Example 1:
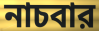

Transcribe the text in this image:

নাচবার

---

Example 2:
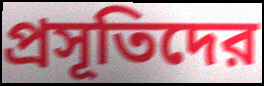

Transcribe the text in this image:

প্রসূতিদের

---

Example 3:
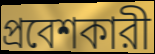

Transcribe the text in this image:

প্রবেশকারী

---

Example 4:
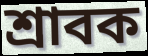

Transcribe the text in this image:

শ্রাবক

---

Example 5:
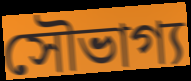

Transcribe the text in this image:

সৌভাগ্য